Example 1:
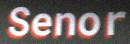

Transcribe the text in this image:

Senor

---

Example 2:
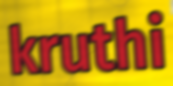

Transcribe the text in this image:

kruthi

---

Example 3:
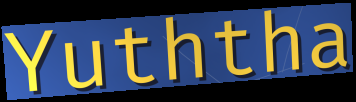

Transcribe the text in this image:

Yuththa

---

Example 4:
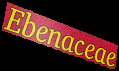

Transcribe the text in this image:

Ebenaceae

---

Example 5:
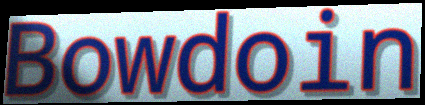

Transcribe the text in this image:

Bowdoin